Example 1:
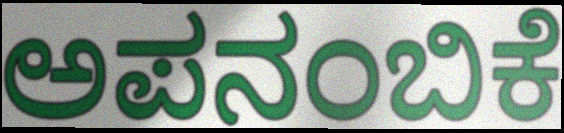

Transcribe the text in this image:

ಅಪನಂಬಿಕೆ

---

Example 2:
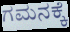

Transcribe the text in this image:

ಗಮನಕ್ಕೆ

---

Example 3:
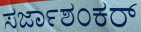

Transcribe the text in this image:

ಸರ್ಜಾಶಂಕರ್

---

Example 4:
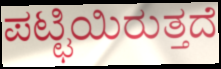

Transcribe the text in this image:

ಪಟ್ಟಿಯಿರುತ್ತದೆ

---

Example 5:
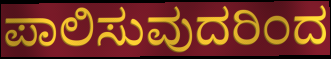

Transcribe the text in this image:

ಪಾಲಿಸುವುದರಿಂದ